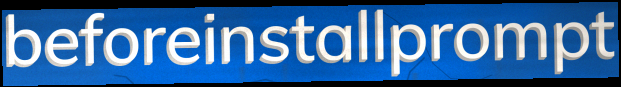
beforeinstallprompt